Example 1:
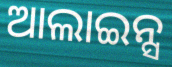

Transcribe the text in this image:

ଆଲାଇନ୍ସ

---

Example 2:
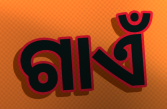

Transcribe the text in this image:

ଗାଏଁ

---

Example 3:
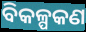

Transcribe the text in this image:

ବିକଳ୍ପକଣ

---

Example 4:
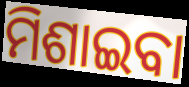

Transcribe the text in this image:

ମିଶାଇବା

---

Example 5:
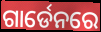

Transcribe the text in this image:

ଗାର୍ଡେନରେ